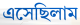
এসেছিলাম